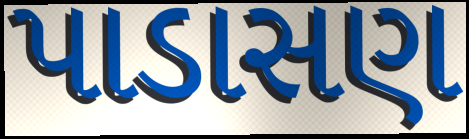
પાડાસણ